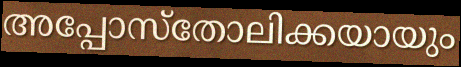
അപ്പോസ്തോലിക്കയായും